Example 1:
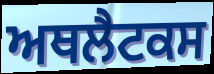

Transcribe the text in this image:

ਅਥਲੈਟਕਸ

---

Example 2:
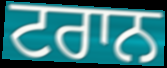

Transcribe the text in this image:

ਟਰਾਨ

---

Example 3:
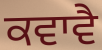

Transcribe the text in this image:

ਕਵਾਵੈ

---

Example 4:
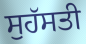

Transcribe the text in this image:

ਸੁਹੱਸਤੀ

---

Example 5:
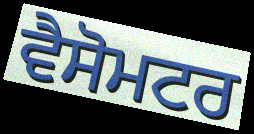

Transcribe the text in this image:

ਵੈਸੋਮਟਰ